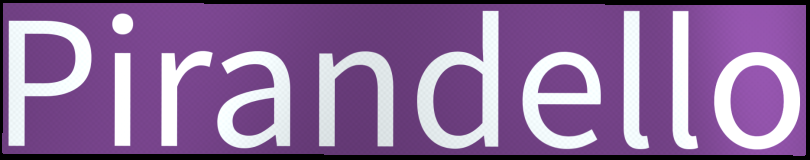
Pirandello